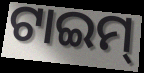
ଟାଇମ୍